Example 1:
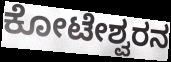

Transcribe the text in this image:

ಕೋಟೇಶ್ವರನ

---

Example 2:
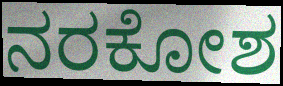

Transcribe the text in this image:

ನರಕೋಶ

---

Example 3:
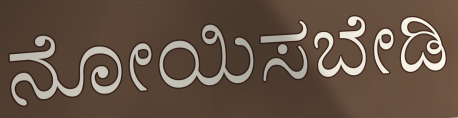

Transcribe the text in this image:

ನೋಯಿಸಬೇಡಿ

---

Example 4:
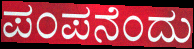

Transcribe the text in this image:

ಪಂಪನೆಂದು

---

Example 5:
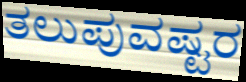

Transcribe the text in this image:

ತಲುಪುವಷ್ಟರ